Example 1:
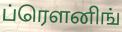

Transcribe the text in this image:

ப்ரௌனிங்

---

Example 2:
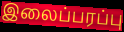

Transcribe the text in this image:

இலைப்பரப்பு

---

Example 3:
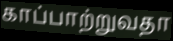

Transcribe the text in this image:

காப்பாற்றுவதா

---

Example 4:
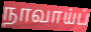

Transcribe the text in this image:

நாவாய்ப்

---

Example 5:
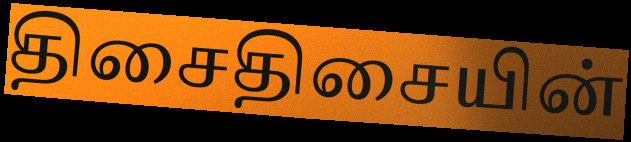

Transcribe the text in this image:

திசைதிசையின்